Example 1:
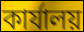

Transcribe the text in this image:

কাৰ্যালয়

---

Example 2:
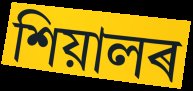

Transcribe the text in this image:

শিয়ালৰ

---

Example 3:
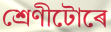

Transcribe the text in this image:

শ্ৰেণীটোৰে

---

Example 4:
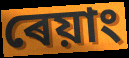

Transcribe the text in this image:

ৰেয়াং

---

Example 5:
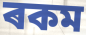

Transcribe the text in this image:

ৰকম